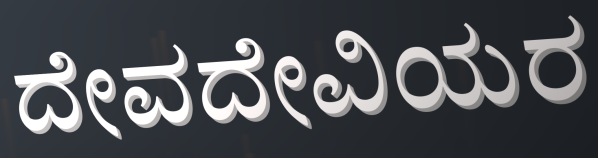
ದೇವದೇವಿಯರ